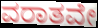
ವರಾತವೇ